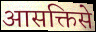
आसक्तिसे